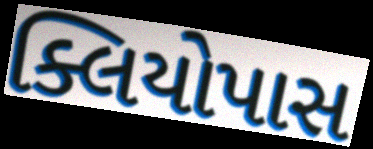
ક્લિયોપાસ